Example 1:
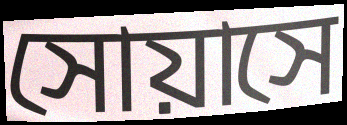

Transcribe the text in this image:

সোয়াসে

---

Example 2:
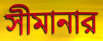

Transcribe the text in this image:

সীমানার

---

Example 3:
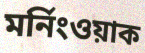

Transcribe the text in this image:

মর্নিংওয়াক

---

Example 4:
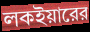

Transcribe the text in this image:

লকইয়ারের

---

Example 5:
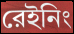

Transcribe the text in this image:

রেইনিং